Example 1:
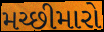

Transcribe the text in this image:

મચ્છીમારો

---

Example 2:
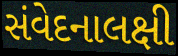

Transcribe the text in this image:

સંવેદનાલક્ષી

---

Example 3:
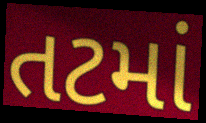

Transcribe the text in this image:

તટમાં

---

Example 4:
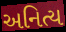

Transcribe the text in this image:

અનિત્ય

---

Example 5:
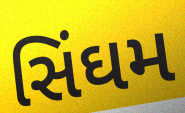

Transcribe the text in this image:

સિંઘમ